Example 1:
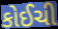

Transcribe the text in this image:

કોઈચી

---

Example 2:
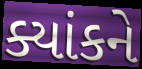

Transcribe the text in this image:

ક્યાંકને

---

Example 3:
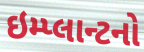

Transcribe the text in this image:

ઇમ્પ્લાન્ટનો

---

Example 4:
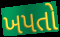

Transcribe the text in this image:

ખપતો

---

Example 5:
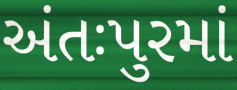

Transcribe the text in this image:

અંતઃપુરમાં